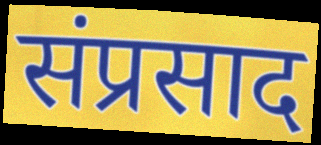
संप्रसाद